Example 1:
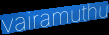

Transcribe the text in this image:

vairamuthu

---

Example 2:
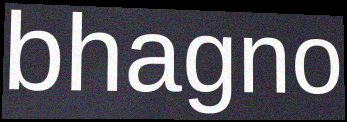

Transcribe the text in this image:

bhagno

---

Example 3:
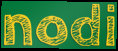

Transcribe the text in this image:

nodi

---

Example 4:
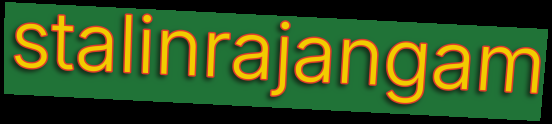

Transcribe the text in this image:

stalinrajangam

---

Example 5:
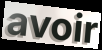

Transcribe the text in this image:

avoir